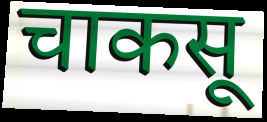
चाकसू